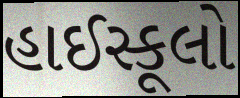
હાઈસ્કૂલો